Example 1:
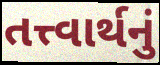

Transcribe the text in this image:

તત્ત્વાર્થનું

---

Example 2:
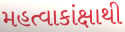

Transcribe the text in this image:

મહત્વાકાંક્ષાથી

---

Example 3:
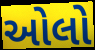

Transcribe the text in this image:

ઓલો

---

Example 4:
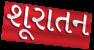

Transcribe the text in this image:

શૂરાતન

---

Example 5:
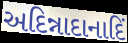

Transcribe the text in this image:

અદિન્નાદાનાદિં